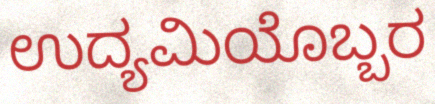
ಉದ್ಯಮಿಯೊಬ್ಬರ